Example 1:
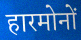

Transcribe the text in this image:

हारमोनों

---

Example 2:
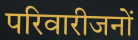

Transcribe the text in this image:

परिवारीजनों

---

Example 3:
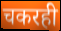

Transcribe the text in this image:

चकरही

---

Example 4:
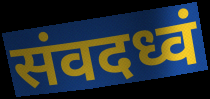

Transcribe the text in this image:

संवदध्वं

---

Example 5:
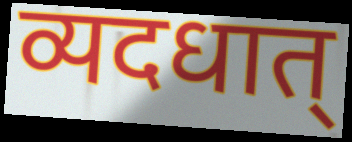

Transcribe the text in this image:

व्यदधात्